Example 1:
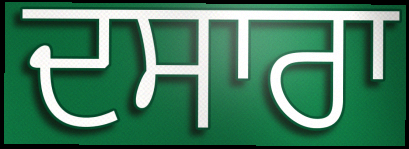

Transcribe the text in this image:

ਦਸਾਰਾ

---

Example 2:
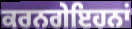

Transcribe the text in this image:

ਕਰਨਗੇਇਹਨਾਂ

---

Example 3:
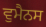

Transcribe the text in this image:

ਵੁਮੈਨਸ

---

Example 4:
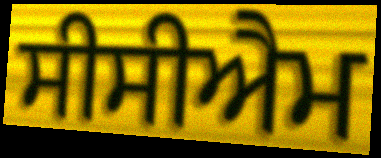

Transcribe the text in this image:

ਸੀਸੀਐਮ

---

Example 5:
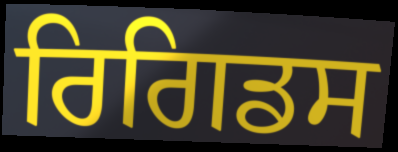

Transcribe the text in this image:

ਰਿਗਿਡਸ